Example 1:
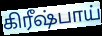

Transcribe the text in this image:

கிரீஷ்பாய்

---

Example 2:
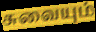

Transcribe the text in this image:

சுவையும்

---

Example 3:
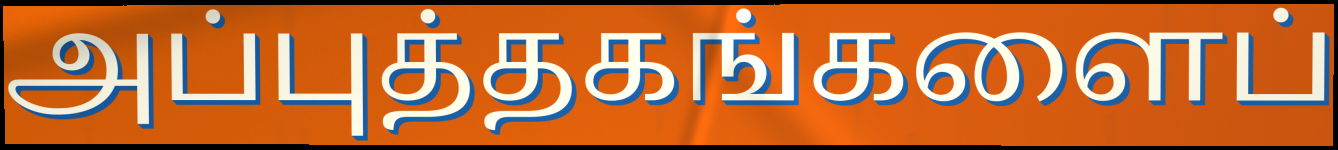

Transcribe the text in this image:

அப்புத்தகங்களைப்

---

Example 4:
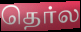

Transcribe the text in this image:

தெர்ல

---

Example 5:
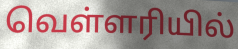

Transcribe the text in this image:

வெள்ளரியில்